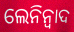
ଲେନିନ୍ବାଦ